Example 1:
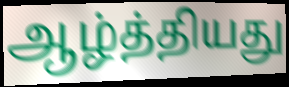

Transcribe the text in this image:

ஆழ்த்தியது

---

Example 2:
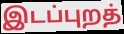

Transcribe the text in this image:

இடப்புறத்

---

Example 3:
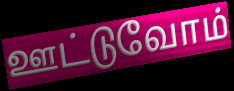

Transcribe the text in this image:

ஊட்டுவோம்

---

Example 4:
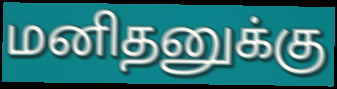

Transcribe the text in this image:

மனிதனுக்கு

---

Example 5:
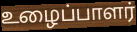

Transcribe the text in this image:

உழைப்பாளர்